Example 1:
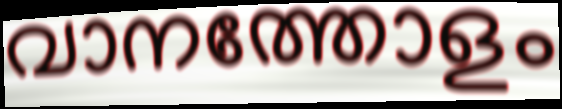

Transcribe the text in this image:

വാനത്തോളം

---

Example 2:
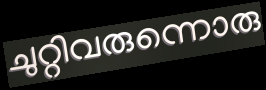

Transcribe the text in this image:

ചുറ്റിവരുന്നൊരു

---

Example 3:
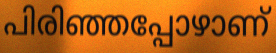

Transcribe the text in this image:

പിരിഞ്ഞപ്പോഴാണ്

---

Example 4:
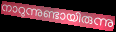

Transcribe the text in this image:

നാറുന്നുണ്ടായിരുന്നു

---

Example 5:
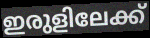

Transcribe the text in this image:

ഇരുളിലേക്ക്